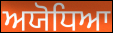
ਅਯੋਧਿਆ